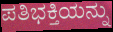
ಪತಿಭಕ್ತಿಯನ್ನು